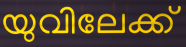
യുവിലേക്ക്